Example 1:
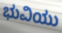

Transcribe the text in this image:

ಭುವಿಯು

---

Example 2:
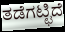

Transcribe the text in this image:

ತಡೆಗಟ್ಟಿದೆ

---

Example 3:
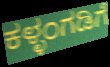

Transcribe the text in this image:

ಕಳ್ಳಂಗಡಿಗೆ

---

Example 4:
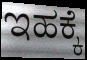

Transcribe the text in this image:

ಇಹಕ್ಕೆ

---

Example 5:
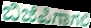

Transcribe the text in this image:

ಬಿಜೆಪಿಗಾಗಲಿ